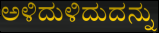
ಅಳಿದುಳಿದುದನ್ನು